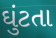
ઘુંટતા